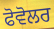
ਫੋਵੋਲਰ